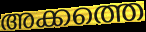
അക്കത്തെ